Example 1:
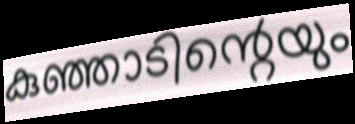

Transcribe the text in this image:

കുഞ്ഞാടിന്റെയും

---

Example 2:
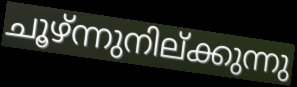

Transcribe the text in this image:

ചൂഴ്ന്നുനില്ക്കുന്നു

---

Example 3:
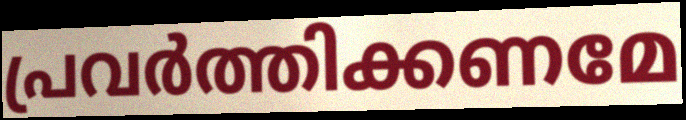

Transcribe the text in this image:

പ്രവർത്തിക്കണമേ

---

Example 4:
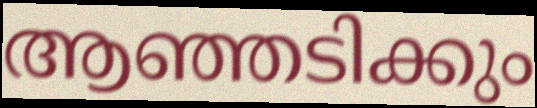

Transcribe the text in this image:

ആഞ്ഞടിക്കും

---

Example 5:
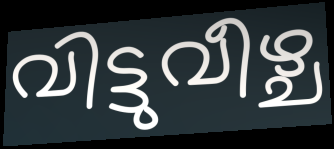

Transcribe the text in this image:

വിട്ടുവീഴ്ച